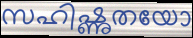
സഹിഷ്ണുതയോ